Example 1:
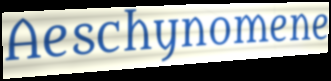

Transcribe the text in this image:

Aeschynomene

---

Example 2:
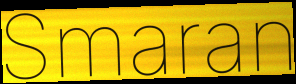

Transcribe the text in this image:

Smaran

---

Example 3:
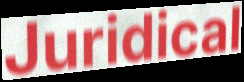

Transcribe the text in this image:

Juridical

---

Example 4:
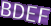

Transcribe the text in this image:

BDEF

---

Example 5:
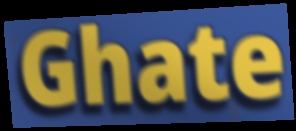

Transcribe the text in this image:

Ghate